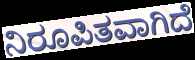
ನಿರೂಪಿತವಾಗಿದೆ